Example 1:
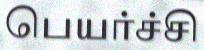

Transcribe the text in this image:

பெயர்ச்சி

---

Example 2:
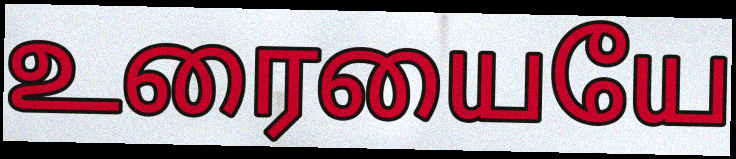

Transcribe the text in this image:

உரையையே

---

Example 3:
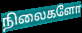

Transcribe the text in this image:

நிலைகளோ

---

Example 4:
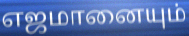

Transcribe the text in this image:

எஜமானையும்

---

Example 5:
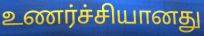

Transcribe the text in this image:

உணர்ச்சியானது